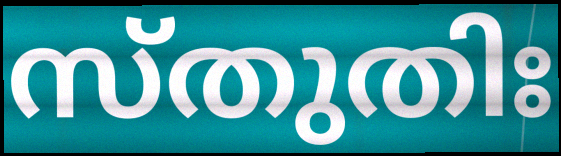
സ്തുതിഃ